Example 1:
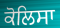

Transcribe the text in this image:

ਕੋਲਿਸਾ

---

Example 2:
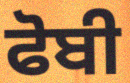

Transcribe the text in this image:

ਫੋਬੀ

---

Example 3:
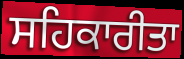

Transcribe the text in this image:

ਸਹਿਕਾਰੀਤਾ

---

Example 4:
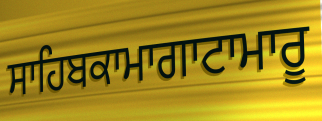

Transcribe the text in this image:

ਸਾਹਿਬਕਾਮਾਗਾਟਾਮਾਰੂ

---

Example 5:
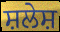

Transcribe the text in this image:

ਸ਼ਲੇਸ਼